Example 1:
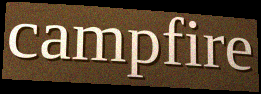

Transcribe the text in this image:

campfire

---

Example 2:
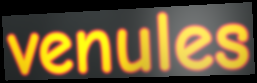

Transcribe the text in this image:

venules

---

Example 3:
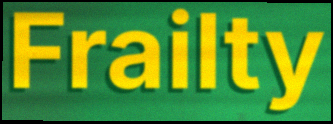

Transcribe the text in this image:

Frailty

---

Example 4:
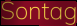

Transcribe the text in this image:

Sontag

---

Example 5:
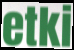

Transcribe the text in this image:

etki